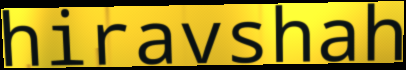
hiravshah